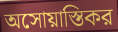
অসোয়াস্তিকর